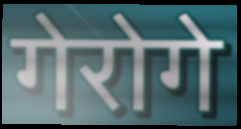
गेरोगे